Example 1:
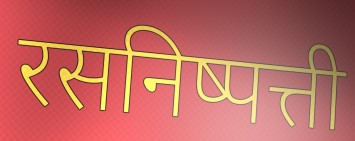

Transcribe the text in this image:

रसनिष्पत्ती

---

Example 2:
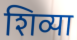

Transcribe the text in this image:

शिव्या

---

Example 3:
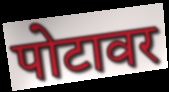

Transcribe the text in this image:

पोटावर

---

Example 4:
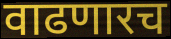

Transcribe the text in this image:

वाढणारच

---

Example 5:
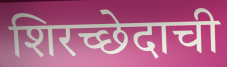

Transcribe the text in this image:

शिरच्छेदाची